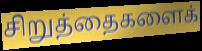
சிறுத்தைகளைக்